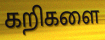
கறிகளை